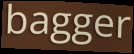
bagger